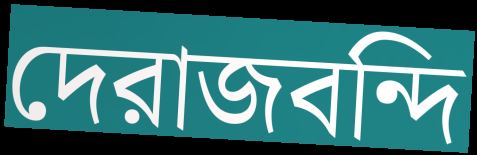
দেরাজবন্দি